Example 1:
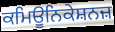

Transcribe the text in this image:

ਕਮਿਊਨਿਕੇਸ਼ਨਜ਼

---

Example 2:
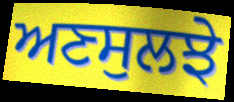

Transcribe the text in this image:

ਅਣਸੁਲਝੇ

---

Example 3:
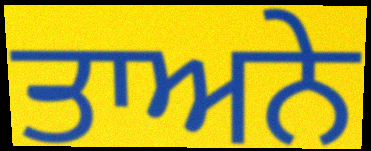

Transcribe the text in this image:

ਤਾਅਨੇ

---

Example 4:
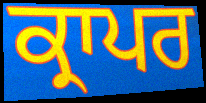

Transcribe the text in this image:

ਕ੍ਰਾਪਰ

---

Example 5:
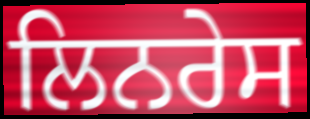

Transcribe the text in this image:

ਲਿਨਰੇਸ